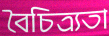
বৈচিত্ৰ্যতা